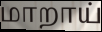
மாறாய்